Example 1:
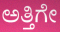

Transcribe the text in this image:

ಅತ್ತಿಗೇ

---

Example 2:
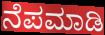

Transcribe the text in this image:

ನೆಪಮಾಡಿ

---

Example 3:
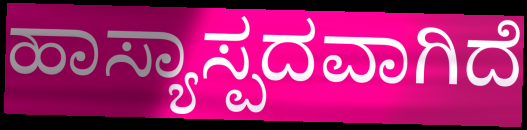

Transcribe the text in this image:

ಹಾಸ್ಯಾಸ್ಪದವಾಗಿದೆ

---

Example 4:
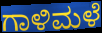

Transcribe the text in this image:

ಗಾಳಿಮಳೆ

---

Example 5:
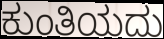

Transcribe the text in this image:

ಕುಂತಿಯದು